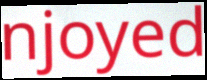
njoyed